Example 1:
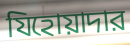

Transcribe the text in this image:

যিহোয়াদার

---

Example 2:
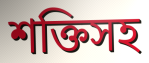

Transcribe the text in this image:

শক্তিসহ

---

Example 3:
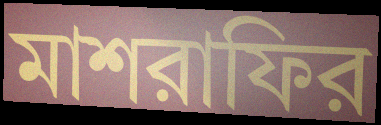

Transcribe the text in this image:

মাশরাফির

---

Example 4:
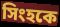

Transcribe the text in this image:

সিংহকে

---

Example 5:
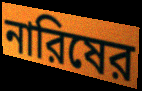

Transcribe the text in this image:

নারিষের